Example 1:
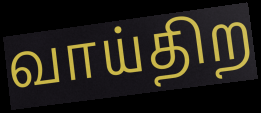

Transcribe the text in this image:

வாய்திற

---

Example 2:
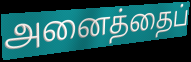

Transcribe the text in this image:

அனைத்தைப்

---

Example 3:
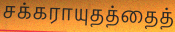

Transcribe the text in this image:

சக்கராயுதத்தைத்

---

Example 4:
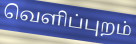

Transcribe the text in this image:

வெளிப்புறம்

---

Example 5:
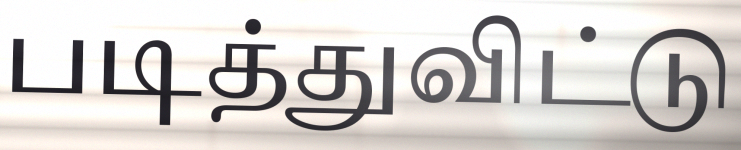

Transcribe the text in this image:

படித்துவிட்டு